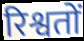
रिश्वतों